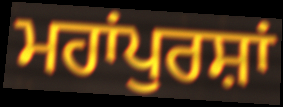
ਮਹਾਂਪੁਰਸ਼ਾਂ